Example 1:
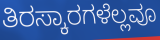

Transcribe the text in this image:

ತಿರಸ್ಕಾರಗಳೆಲ್ಲವೂ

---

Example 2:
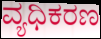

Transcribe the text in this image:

ವ್ಯಧಿಕರಣ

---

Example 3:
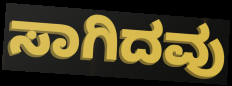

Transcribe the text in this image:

ಸಾಗಿದವು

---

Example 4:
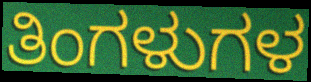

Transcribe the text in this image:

ತಿಂಗಳುಗಳ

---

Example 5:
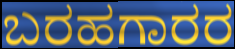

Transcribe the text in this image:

ಬರಹಗಾರರ